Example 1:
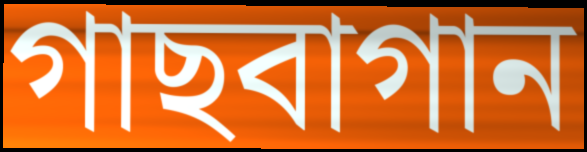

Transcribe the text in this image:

গাছবাগান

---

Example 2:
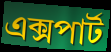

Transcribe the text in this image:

এক্সপার্ট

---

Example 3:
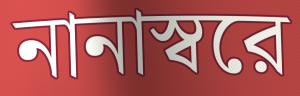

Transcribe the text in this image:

নানাস্বরে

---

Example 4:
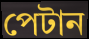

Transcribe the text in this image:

পেটান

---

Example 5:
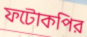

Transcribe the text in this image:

ফটোকপির